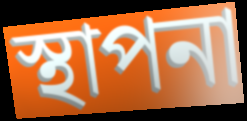
স্থাপনা